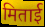
मिताई